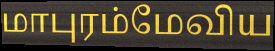
மாபுரம்மேவிய